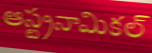
ఆస్ట్రనామికల్